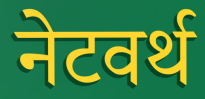
नेटवर्थ